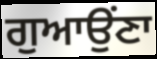
ਗੁਆਉਂਣਾ